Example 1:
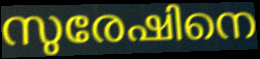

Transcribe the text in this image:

സുരേഷിനെ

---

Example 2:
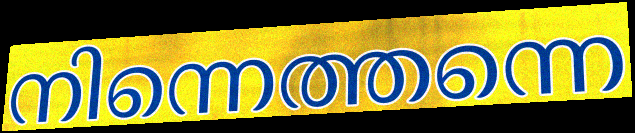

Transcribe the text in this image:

നിന്നെത്തന്നെ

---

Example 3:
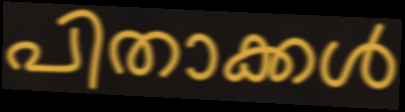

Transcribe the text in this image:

പിതാക്കൾ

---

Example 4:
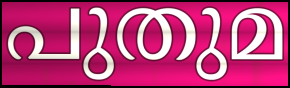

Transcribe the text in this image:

പുതുമ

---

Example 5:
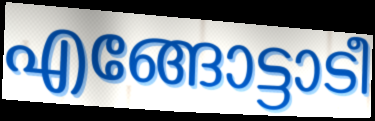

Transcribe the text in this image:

എങ്ങോട്ടാടീ